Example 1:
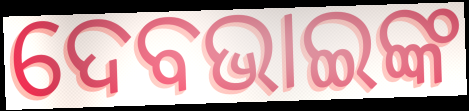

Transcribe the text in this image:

ଦେବଭାଇଙ୍କ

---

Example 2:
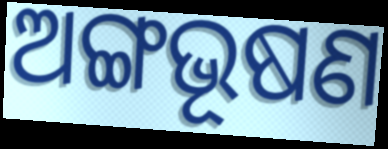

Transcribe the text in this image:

ଅଙ୍ଗଭୂଷଣ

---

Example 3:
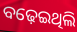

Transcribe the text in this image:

ବଢ଼େଇଥିଲି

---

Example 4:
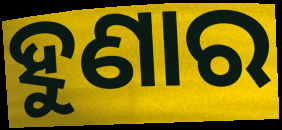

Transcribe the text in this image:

ହୁଣାର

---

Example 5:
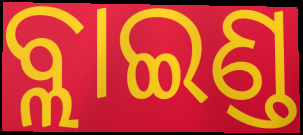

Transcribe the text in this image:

ବ୍ଲାଇଣ୍ଡ